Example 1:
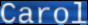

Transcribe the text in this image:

Carol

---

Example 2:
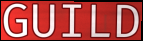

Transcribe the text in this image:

GUILD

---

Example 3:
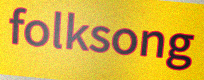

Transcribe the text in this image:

folksong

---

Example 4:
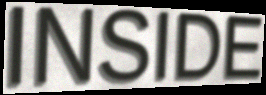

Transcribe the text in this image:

INSIDE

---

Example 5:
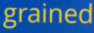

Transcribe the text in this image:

grained